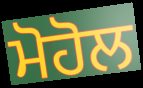
ਮੋਹੋਲ